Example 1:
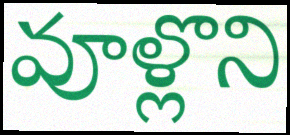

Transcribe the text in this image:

వూళ్లొని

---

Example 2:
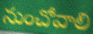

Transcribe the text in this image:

నుంచోవాలి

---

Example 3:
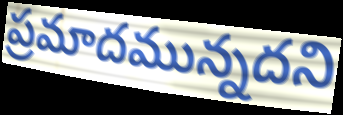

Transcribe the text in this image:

ప్రమాదమున్నదని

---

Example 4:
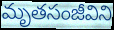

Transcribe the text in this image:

మృతసంజీవిని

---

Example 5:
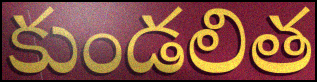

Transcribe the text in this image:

కుండలిత